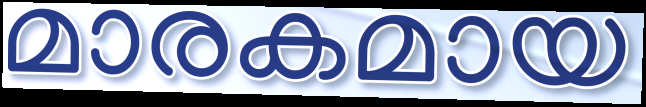
മാരകമായ